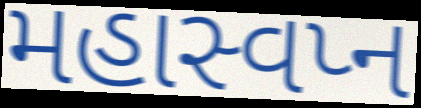
મહાસ્વપ્ન